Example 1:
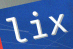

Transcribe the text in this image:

lix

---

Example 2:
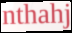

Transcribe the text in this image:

nthahj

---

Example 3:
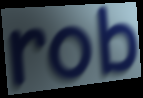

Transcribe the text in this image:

rob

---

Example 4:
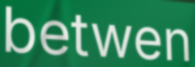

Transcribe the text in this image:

betwen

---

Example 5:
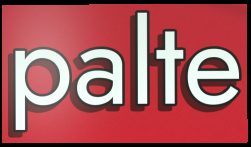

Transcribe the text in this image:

palte